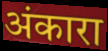
अंकारा